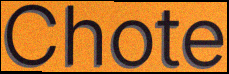
Chote